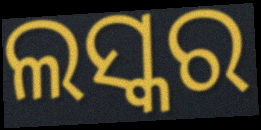
ଲସ୍କର